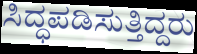
ಸಿದ್ಧಪಡಿಸುತ್ತಿದ್ದರು